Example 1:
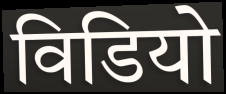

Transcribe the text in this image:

विडियो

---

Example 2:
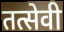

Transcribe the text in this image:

तत्सेवी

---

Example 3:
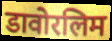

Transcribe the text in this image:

डावोरलिम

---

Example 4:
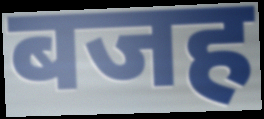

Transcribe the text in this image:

बजह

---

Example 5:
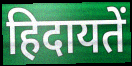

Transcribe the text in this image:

हिदायतें